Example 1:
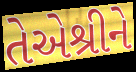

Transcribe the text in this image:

તેએશ્રીને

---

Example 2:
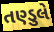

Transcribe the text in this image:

તણ્ડુલે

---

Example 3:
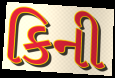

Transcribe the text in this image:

કિની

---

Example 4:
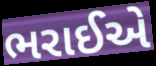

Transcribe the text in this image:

ભરાઈએ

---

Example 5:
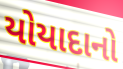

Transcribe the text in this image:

યોયાદાનો